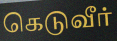
கெடுவீர்